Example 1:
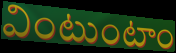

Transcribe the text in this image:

వింటుంటాం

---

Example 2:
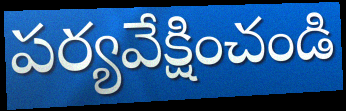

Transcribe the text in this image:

పర్యవేక్షించండి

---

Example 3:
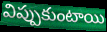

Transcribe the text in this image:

విప్పుకుంటాయి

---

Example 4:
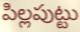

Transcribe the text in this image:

పిల్లపుట్టు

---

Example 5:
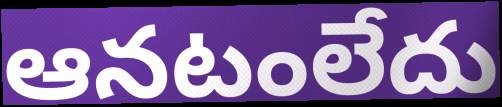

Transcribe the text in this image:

ఆనటంలేదు